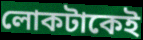
লোকটাকেই